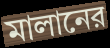
মালানের